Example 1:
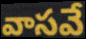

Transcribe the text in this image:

వాసవే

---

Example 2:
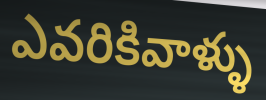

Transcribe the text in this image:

ఎవరికివాళ్ళు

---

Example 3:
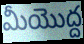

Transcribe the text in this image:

మీయొద్ద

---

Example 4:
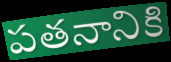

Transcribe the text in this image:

పతనానికి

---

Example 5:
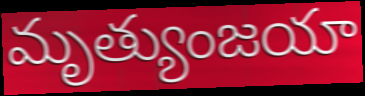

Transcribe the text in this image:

మృత్యుంజయా